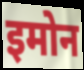
इमोन